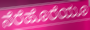
ನೆರೆಹೊರೆಯೂ